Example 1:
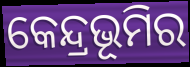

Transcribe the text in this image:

କେନ୍ଦ୍ରଭୂମିର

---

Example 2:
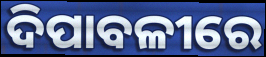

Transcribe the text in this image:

ଦିପାବଳୀରେ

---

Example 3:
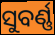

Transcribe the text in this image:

ସୁବର୍ଣ୍ଣ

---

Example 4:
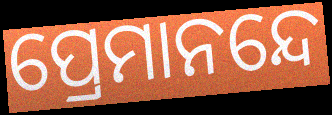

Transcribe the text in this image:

ପ୍ରେମାନନ୍ଦେ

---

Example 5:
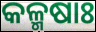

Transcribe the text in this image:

କଳ୍ମଷାଃ